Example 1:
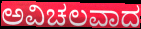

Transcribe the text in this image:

ಅವಿಚಲವಾದ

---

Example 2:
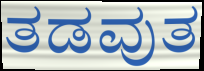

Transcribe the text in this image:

ತಡವುತ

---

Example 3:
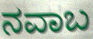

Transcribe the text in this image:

ನವಾಬ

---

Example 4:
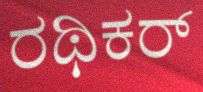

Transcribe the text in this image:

ರಥಿಕರ್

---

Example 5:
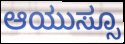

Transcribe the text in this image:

ಆಯುಸ್ಸೂ